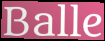
Balle